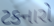
ટકનારો